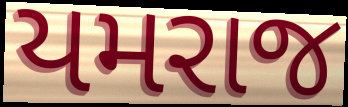
યમરાજ